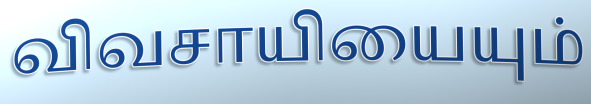
விவசாயியையும்